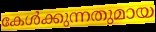
കേൾക്കുന്നതുമായ